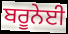
ਬਰੂਨੇਈ